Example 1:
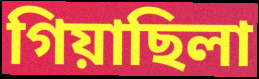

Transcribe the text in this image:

গিয়াছিলা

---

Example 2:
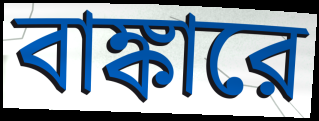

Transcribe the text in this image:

বাঙ্কারে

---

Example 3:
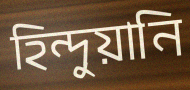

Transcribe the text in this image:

হিন্দুয়ানি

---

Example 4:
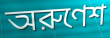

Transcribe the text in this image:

অরুণেশ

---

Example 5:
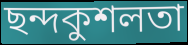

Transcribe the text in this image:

ছন্দকুশলতা